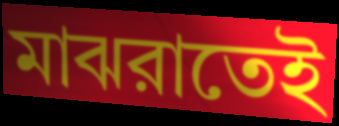
মাঝরাতেই